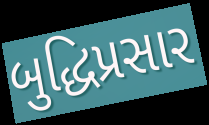
બુદ્ધિપ્રસાર